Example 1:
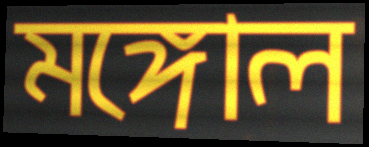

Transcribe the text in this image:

মঙ্গোল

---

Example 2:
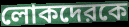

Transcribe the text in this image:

লোকদেরকে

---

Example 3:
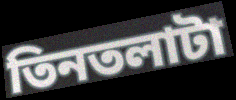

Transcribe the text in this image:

তিনতলাটা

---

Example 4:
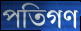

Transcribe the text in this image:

পতিগণ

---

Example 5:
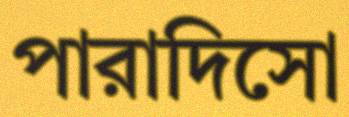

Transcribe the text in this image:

পারাদিসো